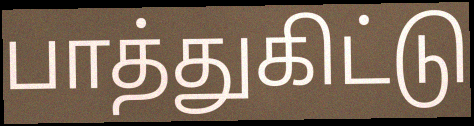
பாத்துகிட்டு